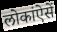
लोकांऐसें